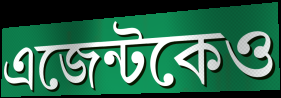
এজেন্টকেও